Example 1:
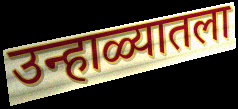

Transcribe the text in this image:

उन्हाळ्यातला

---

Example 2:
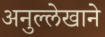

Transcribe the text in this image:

अनुल्लेखाने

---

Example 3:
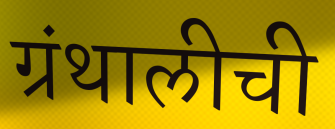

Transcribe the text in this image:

ग्रंथालीची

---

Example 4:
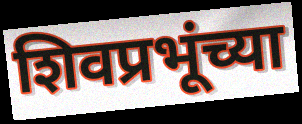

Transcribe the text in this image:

शिवप्रभूंच्या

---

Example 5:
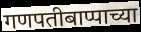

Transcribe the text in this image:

गणपतीबाप्पाच्या